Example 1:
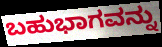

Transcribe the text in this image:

ಬಹುಭಾಗವನ್ನು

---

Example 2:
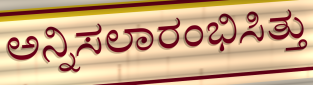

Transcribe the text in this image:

ಅನ್ನಿಸಲಾರಂಭಿಸಿತ್ತು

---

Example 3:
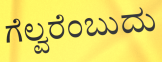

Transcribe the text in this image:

ಗೆಲ್ವರೆಂಬುದು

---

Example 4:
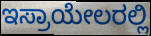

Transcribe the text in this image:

ಇಸ್ರಾಯೇಲರಲ್ಲಿ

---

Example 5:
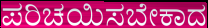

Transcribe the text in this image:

ಪರಿಚಯಿಸಬೇಕಾದ